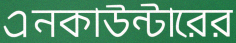
এনকাউন্টারের